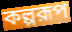
কল্পরূপ